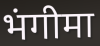
भंगीमा